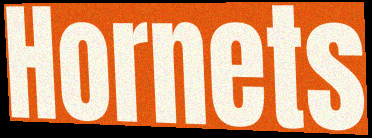
Hornets